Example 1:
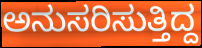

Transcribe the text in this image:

ಅನುಸರಿಸುತ್ತಿದ್ದ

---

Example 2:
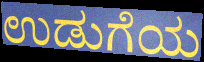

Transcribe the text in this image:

ಉಡುಗೆಯ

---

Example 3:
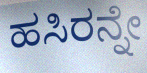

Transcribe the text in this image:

ಹಸಿರನ್ನೇ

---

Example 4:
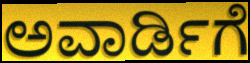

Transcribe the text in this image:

ಅವಾರ್ಡಿಗೆ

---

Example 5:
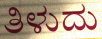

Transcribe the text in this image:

ತಿಳುದು